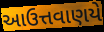
આઉત્તવાણયે